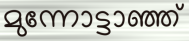
മുന്നോട്ടാഞ്ഞ്